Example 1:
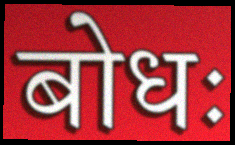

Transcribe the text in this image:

बोधः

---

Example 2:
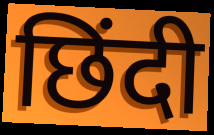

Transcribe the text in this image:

छिंदी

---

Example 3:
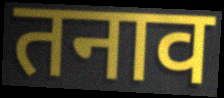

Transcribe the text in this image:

तनाव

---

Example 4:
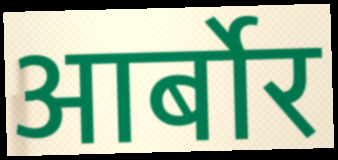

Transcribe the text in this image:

आर्बोर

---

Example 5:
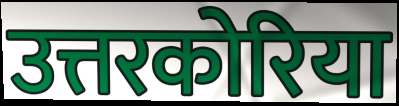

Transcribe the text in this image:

उत्तरकोरिया